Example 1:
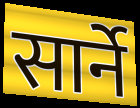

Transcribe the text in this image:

सार्ने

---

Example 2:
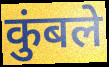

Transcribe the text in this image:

कुंबले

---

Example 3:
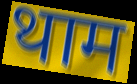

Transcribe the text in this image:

थाम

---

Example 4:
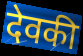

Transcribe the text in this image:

देवकी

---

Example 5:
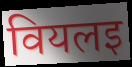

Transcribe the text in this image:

वियलइ